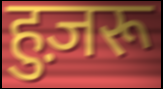
हुज़रू